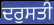
ਦਰੁਸਤੀ